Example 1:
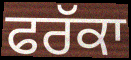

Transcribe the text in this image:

ਫਰੱਕਾ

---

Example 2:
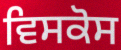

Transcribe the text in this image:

ਵਿਸਕੋਸ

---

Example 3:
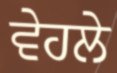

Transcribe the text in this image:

ਵੇਹਲੇ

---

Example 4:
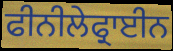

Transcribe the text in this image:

ਫੀਨੀਲੇਫ੍ਰਾਈਨ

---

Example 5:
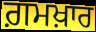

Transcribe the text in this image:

ਗ਼ਮਖ਼ਾਰ